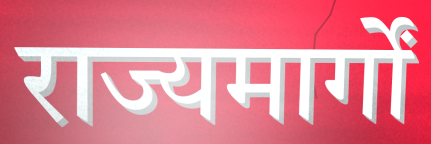
राज्यमार्गों